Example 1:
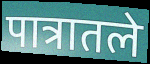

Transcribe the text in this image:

पात्रातले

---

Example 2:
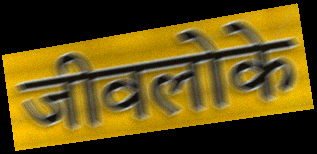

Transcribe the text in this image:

जीवलोके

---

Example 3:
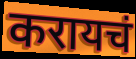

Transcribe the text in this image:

करायचं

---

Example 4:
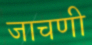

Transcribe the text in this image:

जाचणी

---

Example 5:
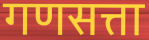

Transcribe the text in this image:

गणसत्ता